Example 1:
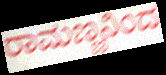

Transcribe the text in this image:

ರಾಮಣ್ಣನಿಂದ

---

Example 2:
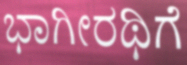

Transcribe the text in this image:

ಭಾಗೀರಥಿಗೆ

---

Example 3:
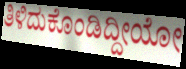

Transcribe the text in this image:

ತಿಳಿದುಕೊಂಡಿದ್ದೀಯೋ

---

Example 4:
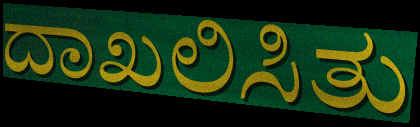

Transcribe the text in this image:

ದಾಖಲಿಸಿತು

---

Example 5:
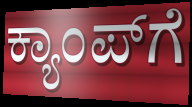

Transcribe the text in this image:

ಕ್ಯಾಂಪ್‍ಗೆ